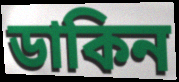
ডাকিন